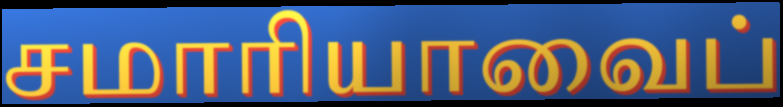
சமாரியாவைப்